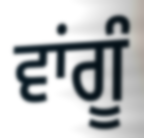
ਵਾਂਗੂੰ